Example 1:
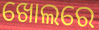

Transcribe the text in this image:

ଖୋଲରେ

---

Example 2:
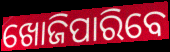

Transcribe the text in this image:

ଖୋଜିପାରିବେ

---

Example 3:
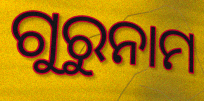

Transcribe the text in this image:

ଗୁରୁନାମ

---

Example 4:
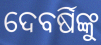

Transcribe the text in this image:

ଦେବର୍ଷିଙ୍କୁ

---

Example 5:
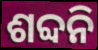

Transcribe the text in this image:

ଶବ୍ଦନି